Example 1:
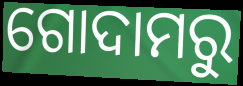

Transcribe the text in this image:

ଗୋଦାମରୁ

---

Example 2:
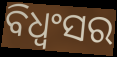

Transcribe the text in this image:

ବିଧ୍ୱଂସର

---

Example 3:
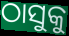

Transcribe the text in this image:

ଠାସୁକୁ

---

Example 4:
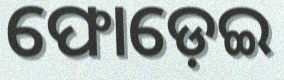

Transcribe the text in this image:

ଫୋଡ଼େଇ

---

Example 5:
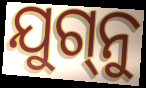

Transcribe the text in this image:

ଯୁଗ୍‌ନୁ